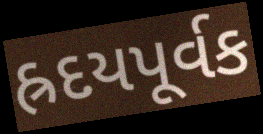
હ્રદયપૂર્વક